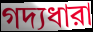
গদ্যধারা